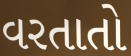
વરતાતો